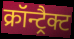
क्रॉन्ट्रैक्ट